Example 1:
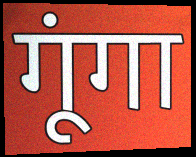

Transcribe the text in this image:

गूंगा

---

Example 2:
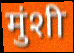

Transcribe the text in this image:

मुंशी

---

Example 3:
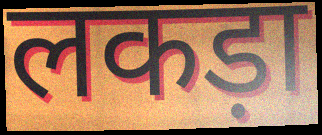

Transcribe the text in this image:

लकड़ा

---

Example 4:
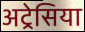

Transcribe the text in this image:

अट्रेसिया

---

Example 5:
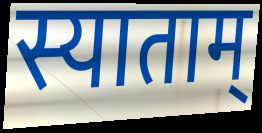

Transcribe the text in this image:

स्याताम्